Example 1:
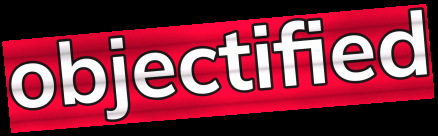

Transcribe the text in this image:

objectified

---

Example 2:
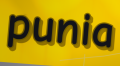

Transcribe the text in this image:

punia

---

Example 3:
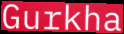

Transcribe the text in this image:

Gurkha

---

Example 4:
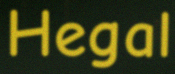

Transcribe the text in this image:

Hegal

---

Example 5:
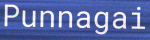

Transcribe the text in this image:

Punnagai